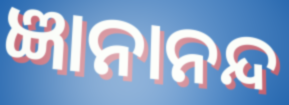
ଜ୍ଞାନାନନ୍ଦ